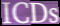
ICDs